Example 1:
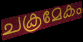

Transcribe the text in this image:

ചക്രമേകം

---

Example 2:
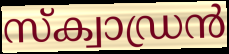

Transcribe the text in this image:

സ്ക്വാഡ്രൻ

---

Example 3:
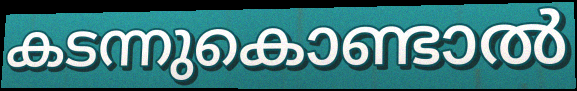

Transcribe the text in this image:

കടന്നുകൊണ്ടാൽ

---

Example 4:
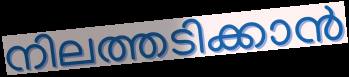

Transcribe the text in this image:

നിലത്തടിക്കാൻ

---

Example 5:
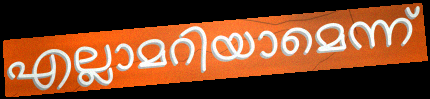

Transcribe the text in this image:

എല്ലാമറിയാമെന്ന്